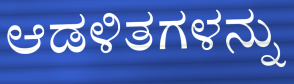
ಆಡಳಿತಗಳನ್ನು